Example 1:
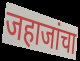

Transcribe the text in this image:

जहाजांचा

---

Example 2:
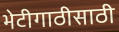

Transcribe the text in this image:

भेटीगाठीसाठी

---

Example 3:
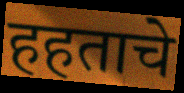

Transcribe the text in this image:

हहताचे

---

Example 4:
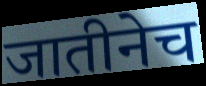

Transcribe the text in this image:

जातीनेच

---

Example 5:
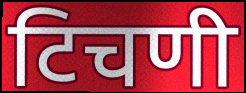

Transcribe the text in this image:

टिचणी